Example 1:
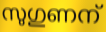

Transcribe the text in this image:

സുഗുണന്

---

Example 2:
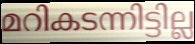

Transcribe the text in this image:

മറികടന്നിട്ടില്ല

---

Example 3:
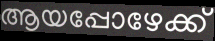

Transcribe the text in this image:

ആയപ്പോഴേക്ക്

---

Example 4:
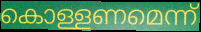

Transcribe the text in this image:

കൊള്ളണമെന്ന്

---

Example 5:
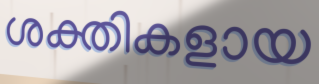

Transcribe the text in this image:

ശക്തികളായ